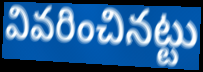
వివరించినట్టు